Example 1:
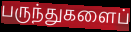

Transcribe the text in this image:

பருந்துகளைப்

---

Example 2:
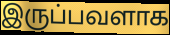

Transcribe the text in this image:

இருப்பவளாக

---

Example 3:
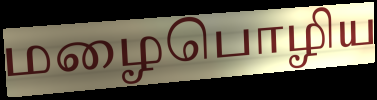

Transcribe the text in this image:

மழைபொழிய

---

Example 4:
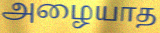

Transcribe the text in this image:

அழையாத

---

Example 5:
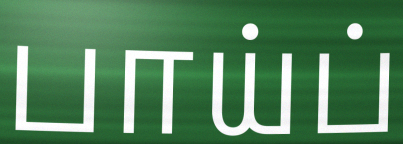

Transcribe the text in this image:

பாய்ப்